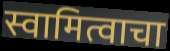
स्वामित्वाचा